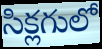
సిక్లగులో